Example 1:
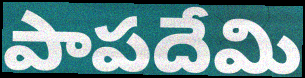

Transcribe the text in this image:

పాపదేమి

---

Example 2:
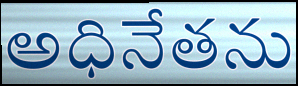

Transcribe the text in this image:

అధినేతను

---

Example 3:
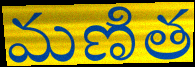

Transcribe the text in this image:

మణిత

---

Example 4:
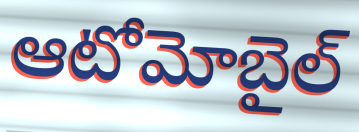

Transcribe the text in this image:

ఆటోమోబైల్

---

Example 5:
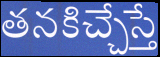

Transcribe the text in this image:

తనకిచ్చేస్తే